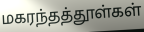
மகரந்தத்தூள்கள்